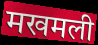
मखमली